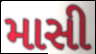
માસી